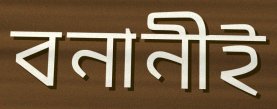
বনানীই